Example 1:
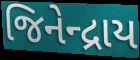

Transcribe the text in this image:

જિનેન્દ્રાય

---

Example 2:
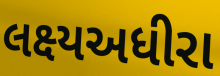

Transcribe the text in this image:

લક્ષ્યઅધીરા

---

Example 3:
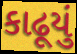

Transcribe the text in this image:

કાઢૂયું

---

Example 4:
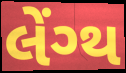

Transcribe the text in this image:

લેંગ્થ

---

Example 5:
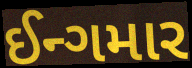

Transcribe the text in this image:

ઈન્ગમાર